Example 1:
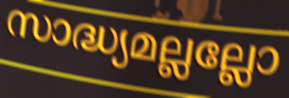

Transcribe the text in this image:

സാദ്ധ്യമല്ലല്ലോ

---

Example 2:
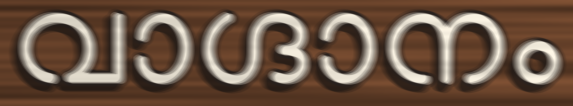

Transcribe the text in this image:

വാഗ്ദാനം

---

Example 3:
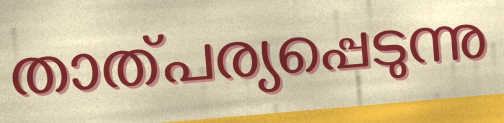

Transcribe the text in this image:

താത്പര്യപ്പെടുന്നു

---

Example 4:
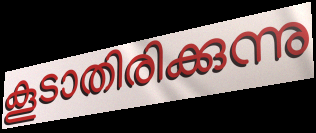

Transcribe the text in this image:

കൂടാതിരിക്കുന്നു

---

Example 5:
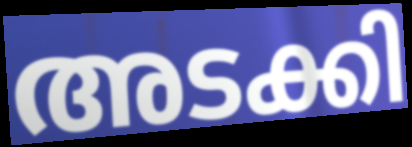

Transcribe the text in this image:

അടക്കി